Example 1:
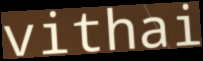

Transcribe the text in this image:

vithai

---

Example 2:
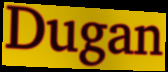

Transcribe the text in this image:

Dugan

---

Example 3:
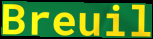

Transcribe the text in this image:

Breuil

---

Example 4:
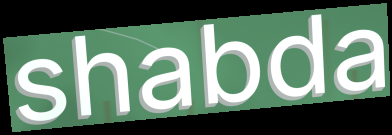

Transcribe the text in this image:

shabda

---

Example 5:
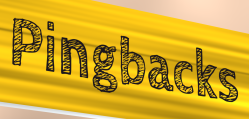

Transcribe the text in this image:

Pingbacks